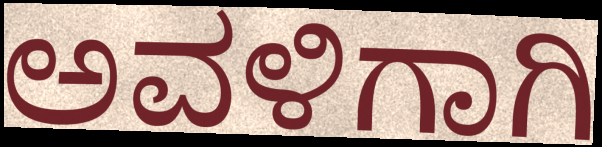
ಅವಳಿಗಾಗಿ